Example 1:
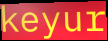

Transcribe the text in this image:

keyur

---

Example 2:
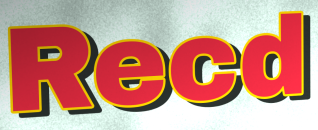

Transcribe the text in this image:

Recd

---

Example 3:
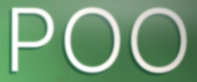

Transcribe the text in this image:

POO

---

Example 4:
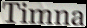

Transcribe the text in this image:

Timna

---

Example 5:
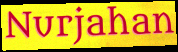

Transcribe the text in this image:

Nurjahan